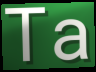
Ta